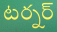
టర్నర్